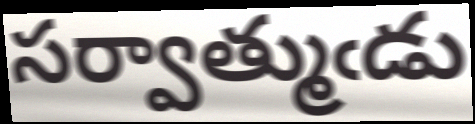
సర్వాత్ముఁడు